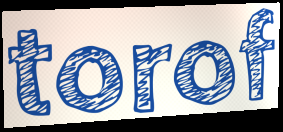
torof